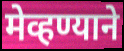
मेव्हण्याने